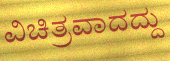
ವಿಚಿತ್ರವಾದದ್ದು